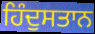
ਹਿੰਦੁਸਤਾਨ